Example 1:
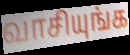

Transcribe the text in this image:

வாசியுங்க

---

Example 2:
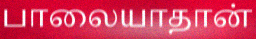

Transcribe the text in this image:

பாலையாதான்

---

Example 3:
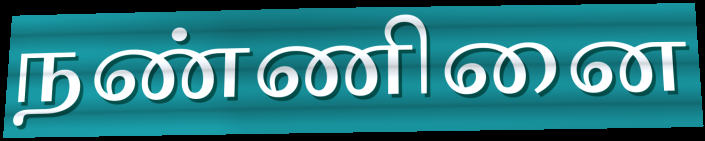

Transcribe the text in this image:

நண்ணினை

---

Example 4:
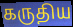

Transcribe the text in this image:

கருதிய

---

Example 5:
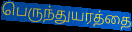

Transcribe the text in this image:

பெருந்துயரத்தை